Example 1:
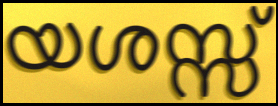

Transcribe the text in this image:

യശസ്സ്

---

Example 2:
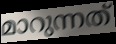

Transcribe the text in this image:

മാറുന്നത്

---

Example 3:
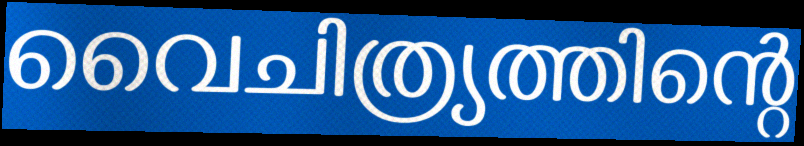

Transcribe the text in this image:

വൈചിത്ര്യത്തിന്റെ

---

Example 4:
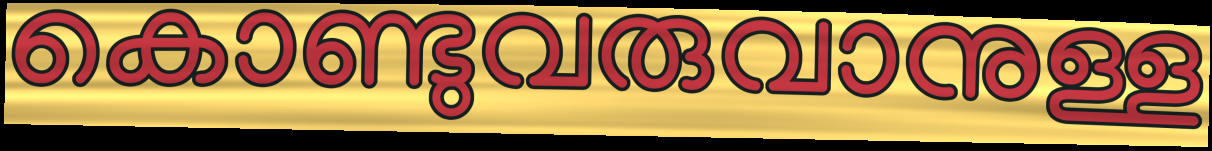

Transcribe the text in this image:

കൊണ്ടുവരുവാനുള്ള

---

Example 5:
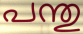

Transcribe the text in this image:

പന്തു